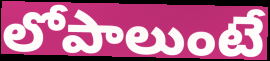
లోపాలుంటే